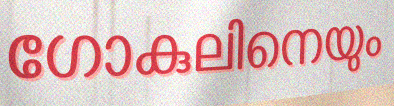
ഗോകുലിനെയും